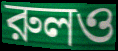
রুলও